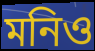
মনিও